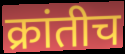
क्रांतीच